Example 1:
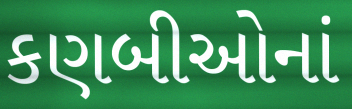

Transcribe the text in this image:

કણબીઓનાં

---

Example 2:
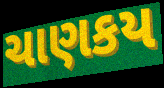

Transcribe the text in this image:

ચાણકય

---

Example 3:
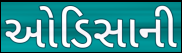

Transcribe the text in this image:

ઓડિસાની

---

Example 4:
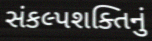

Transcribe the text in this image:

સંકલ્પશક્તિનું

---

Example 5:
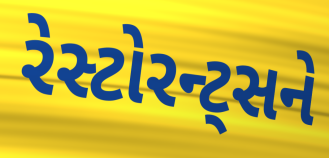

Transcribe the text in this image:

રેસ્ટોરન્ટ્સને